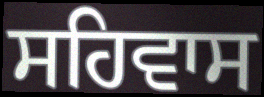
ਸਹਿਵਾਸ